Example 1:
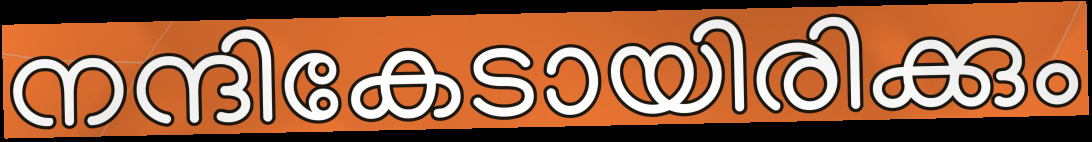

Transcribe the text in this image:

നന്ദികേടായിരിക്കും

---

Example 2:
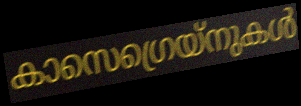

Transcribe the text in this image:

കാസെഗ്രെയ്നുകൾ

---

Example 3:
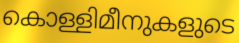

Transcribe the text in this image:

കൊള്ളിമീനുകളുടെ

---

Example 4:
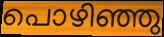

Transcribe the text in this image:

പൊഴിഞ്ഞു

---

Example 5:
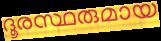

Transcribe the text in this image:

ദൂരസ്ഥരുമായ